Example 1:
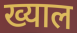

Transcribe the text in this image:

ख्याल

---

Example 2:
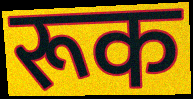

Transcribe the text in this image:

रूक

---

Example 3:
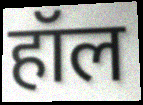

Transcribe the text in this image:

हॉल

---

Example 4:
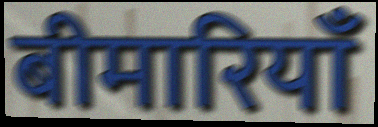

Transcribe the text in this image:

बीमारियाँ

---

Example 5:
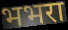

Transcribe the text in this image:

भभरा